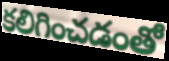
కలిగించడంతో